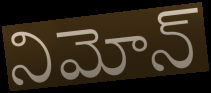
నిమోన్